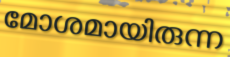
മോശമായിരുന്ന